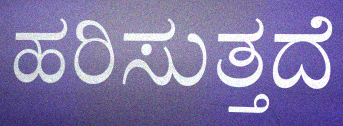
ಹರಿಸುತ್ತದೆ